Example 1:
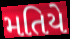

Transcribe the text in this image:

મતિયે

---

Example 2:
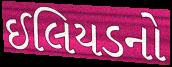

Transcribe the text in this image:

ઈલિયડનો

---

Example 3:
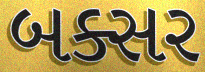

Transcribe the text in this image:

બક્સર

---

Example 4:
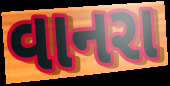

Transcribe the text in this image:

વાનરા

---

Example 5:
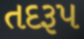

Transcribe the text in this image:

તદરૂપ